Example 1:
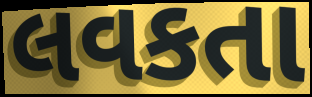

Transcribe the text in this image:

લવકતા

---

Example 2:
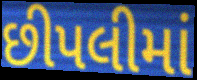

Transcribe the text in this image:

છીપલીમાં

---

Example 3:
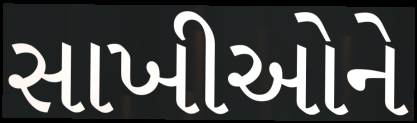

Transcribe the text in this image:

સાખીઓને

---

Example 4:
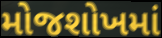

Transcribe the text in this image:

મોજશોખમાં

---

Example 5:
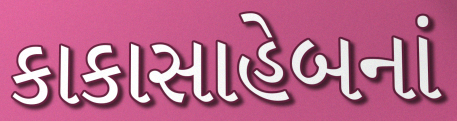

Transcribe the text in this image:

કાકાસાહેબનાં